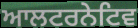
ਆਲਟਰਨੇਟਿਵ